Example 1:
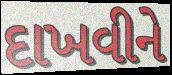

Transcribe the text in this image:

દાખવીને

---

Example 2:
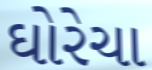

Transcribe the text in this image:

ઘોરેચા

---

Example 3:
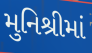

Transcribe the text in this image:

મુનિશ્રીમાં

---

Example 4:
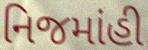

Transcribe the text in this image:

નિજમાંહી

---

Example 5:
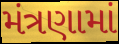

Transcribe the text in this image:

મંત્રણામાં